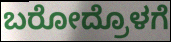
ಬರೋದ್ರೊಳಗೆ